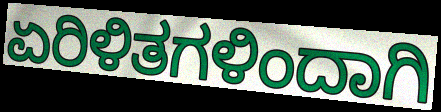
ಏರಿಳಿತಗಳಿಂದಾಗಿ